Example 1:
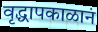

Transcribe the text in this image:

वृद्धापकाळानं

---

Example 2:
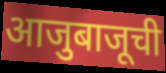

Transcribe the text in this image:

आजुबाजूची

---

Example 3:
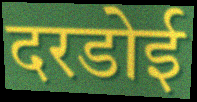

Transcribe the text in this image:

दरडोई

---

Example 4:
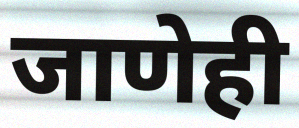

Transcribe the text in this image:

जाणेही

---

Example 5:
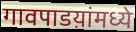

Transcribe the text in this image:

गावपाडय़ांमध्ये